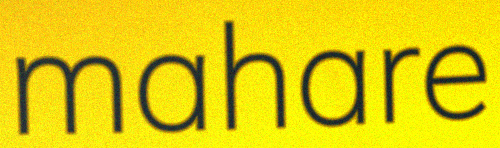
mahare